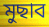
মুছাব